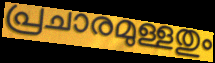
പ്രചാരമുള്ളതും